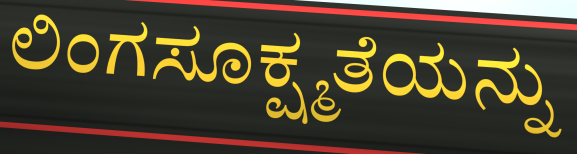
ಲಿಂಗಸೂಕ್ಷ್ಮತೆಯನ್ನು